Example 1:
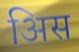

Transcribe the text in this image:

अिस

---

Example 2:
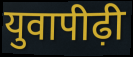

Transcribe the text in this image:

युवापीढ़ी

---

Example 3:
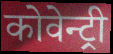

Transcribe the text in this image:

कोवेन्ट्री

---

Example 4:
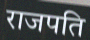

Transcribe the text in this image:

राजपति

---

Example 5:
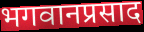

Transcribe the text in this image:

भगवानप्रसाद